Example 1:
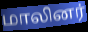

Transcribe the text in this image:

மாலினர்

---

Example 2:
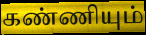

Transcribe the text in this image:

கண்ணியும்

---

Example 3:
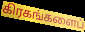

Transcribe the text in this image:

கிரகங்களைப்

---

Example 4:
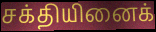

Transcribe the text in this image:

சக்தியினைக்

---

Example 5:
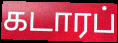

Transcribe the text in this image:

கடாரப்